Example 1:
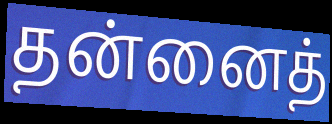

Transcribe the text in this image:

தன்னைத்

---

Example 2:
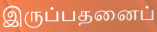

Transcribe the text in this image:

இருப்பதனைப்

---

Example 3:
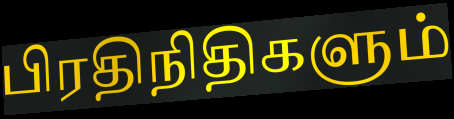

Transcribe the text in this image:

பிரதிநிதிகளும்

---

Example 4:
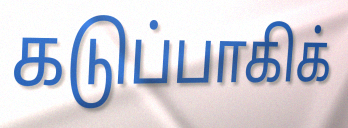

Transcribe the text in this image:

கடுப்பாகிக்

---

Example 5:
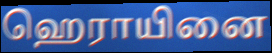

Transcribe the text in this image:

ஹெராயினை